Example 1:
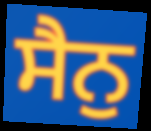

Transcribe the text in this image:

ਸੈਨੁ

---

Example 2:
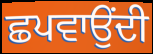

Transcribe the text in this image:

ਛਪਵਾਉਂਦੀ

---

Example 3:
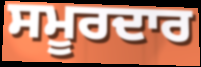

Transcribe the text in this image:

ਸਮੂਰਦਾਰ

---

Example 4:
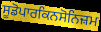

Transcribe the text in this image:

ਸੂਡੋਪਾਰਕਿਨਸੋਨਿਜ਼ਮ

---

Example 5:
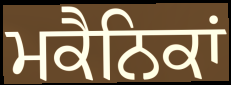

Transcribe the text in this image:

ਮਕੈਨਿਕਾਂ